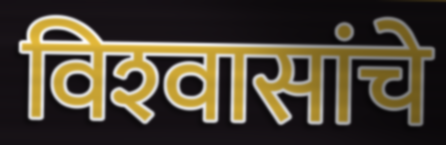
विश्‍वासांचे